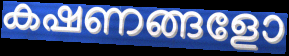
കഷണങ്ങളോ